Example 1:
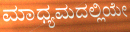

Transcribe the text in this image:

ಮಾಧ್ಯಮದಲ್ಲಿಯೇ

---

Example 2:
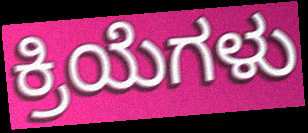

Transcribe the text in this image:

ಕ್ರಿಯೆಗಳು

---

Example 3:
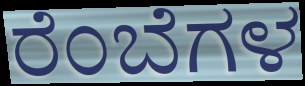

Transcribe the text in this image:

ರೆಂಬೆಗಳ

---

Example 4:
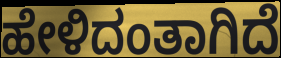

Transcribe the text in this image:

ಹೇಳಿದಂತಾಗಿದೆ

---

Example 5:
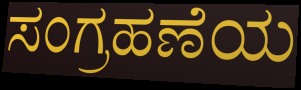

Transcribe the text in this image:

ಸಂಗ್ರಹಣೆಯ